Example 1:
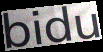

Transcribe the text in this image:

bidu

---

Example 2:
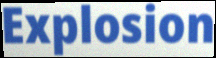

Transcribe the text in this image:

Explosion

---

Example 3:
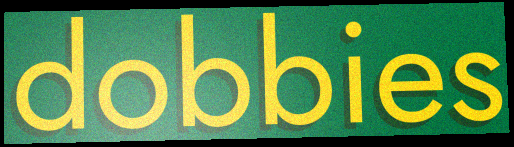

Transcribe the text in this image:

dobbies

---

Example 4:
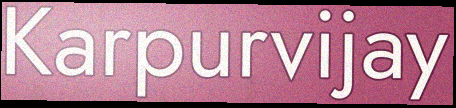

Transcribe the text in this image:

Karpurvijay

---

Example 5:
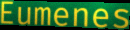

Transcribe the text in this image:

Eumenes